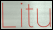
Litu